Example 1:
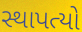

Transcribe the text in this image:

સ્થાપત્યો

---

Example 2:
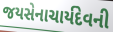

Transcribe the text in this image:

જયસેનાચાર્યદેવની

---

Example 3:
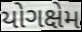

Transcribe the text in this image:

યોગક્ષેમ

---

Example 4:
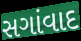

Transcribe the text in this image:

સગાંવાદ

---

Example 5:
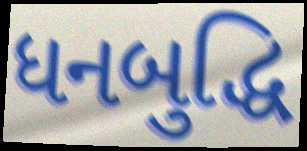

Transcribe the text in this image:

ધનબુદ્ધિ